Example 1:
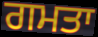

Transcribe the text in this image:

ਗਮਤਾ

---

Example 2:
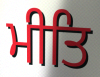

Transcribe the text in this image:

ਮੀਤਿ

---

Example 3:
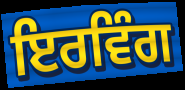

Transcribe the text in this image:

ਇਰਵਿੰਗ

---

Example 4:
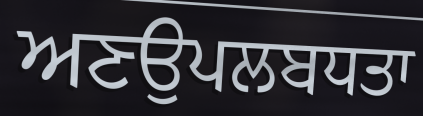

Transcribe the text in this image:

ਅਣਉਪਲਬਧਤਾ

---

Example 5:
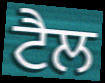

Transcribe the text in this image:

ਟੈਲ